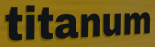
titanum